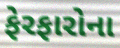
ફેરફારોના